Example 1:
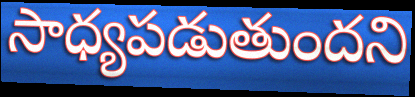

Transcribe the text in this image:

సాధ్యపడుతుందని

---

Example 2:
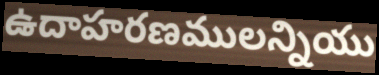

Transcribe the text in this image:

ఉదాహరణములన్నియు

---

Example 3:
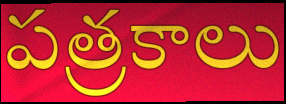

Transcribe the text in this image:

పత్రకాలు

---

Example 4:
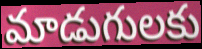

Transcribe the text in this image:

మాడుగులకు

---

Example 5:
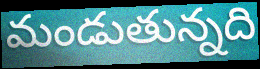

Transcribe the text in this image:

మండుతున్నది